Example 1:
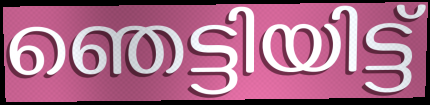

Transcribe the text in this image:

ഞെട്ടിയിട്ട്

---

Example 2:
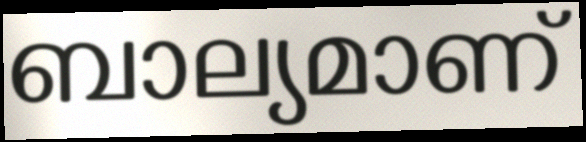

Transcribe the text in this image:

ബാല്യമാണ്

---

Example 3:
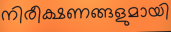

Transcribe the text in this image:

നിരീക്ഷണങ്ങളുമായി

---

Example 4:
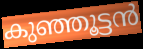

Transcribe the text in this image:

കുഞ്ഞൂട്ടൻ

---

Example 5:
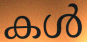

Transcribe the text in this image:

കൾ